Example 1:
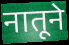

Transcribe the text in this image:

नातूने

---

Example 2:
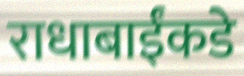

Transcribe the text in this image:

राधाबाईंकडे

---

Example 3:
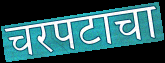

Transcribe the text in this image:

चरपटाचा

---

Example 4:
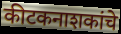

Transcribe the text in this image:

कीटकनाशकांचे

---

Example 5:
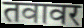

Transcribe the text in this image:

तवावर